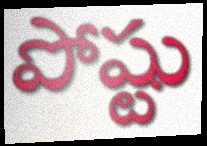
పోష్టు